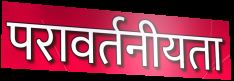
परावर्तनीयता